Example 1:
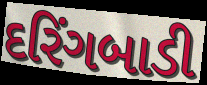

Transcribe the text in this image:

દરિંગબાડી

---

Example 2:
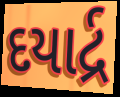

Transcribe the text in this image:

દયાર્દ્ર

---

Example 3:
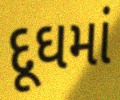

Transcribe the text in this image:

દૂઘમાં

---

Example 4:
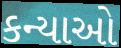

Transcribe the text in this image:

કન્યાઓ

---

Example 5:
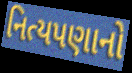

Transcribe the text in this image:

નિત્યપણાનો